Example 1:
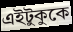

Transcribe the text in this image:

এইটুকুকে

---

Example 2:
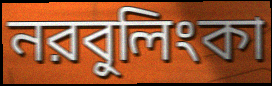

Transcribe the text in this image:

নরবুলিংকা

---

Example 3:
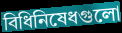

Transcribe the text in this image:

বিধিনিষেধগুলো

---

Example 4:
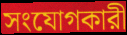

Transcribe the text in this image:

সংযোগকারী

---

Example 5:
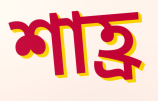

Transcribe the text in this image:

শাহ্র